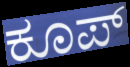
ಕೂಪ್